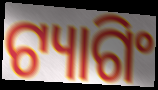
ଟ୍ୟାଗିଂ